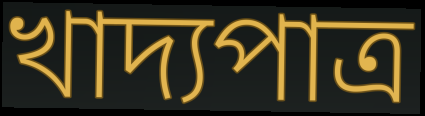
খাদ্যপাত্র